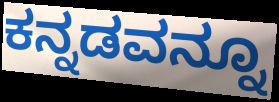
ಕನ್ನಡವನ್ನೂ